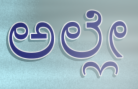
ಅಲ್ಲೇ